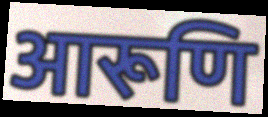
आरूणि